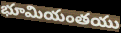
భూమియంతయు